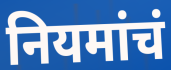
नियमांचं